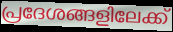
പ്രദേശങ്ങളിലേക്ക്